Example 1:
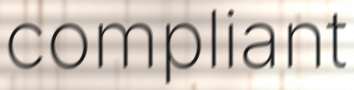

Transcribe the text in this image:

compliant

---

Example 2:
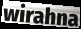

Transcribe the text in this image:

wirahna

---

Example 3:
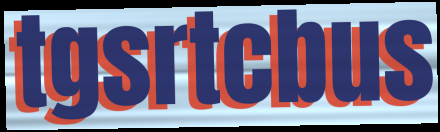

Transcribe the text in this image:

tgsrtcbus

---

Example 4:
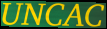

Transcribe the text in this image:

UNCAC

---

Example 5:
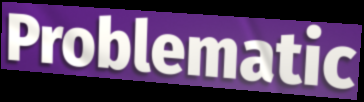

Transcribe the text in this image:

Problematic